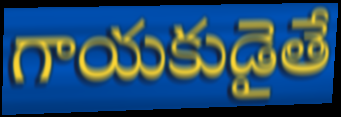
గాయకుడైతే